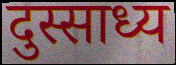
दुस्साध्य